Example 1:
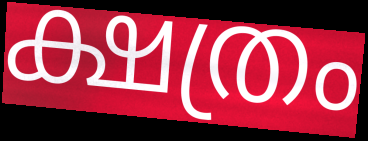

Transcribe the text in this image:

ക്ഷത്രം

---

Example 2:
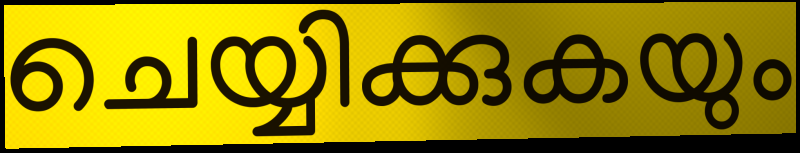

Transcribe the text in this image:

ചെയ്യിക്കുകയും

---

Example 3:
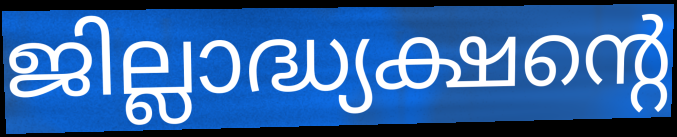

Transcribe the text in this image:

ജില്ലാദ്ധ്യക്ഷന്റെ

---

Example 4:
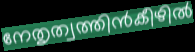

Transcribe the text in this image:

നേതൃത്വത്തിൻകീഴിൽ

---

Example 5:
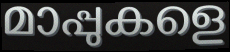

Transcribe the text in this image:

മാപ്പുകളെ